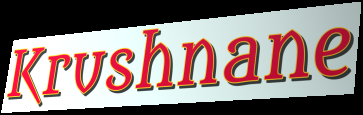
Krushnane